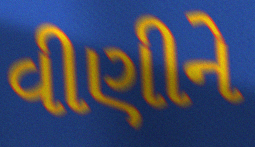
વીણીને